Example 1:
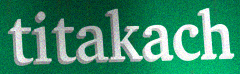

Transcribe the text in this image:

titakach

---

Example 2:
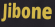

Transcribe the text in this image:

Jibone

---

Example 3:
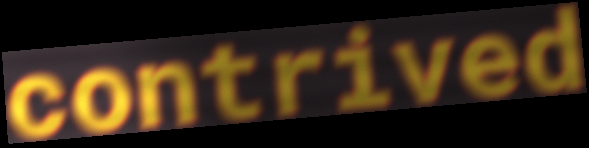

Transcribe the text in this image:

contrived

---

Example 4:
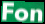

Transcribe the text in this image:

Fon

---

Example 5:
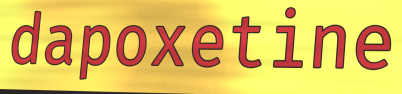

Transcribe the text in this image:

dapoxetine